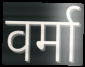
वर्मा